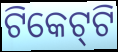
ଟିକେଟ୍‌ଟି